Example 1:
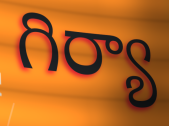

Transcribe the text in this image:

గిర్యా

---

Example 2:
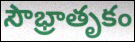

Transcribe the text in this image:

సౌభ్రాతృకం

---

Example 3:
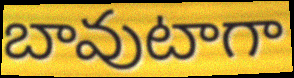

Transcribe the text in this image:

బావుటాగా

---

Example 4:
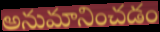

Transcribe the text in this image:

అనుమానించడం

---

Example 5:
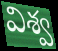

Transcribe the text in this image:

విశ్వ